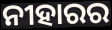
ନୀହାରର